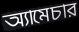
অ্যামেচার